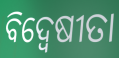
ବିଦ୍ଵେଷୀତା